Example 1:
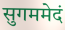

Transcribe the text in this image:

सुगममेदं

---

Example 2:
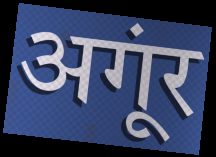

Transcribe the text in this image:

अगूंर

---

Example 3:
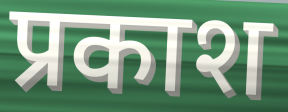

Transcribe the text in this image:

प्रकाश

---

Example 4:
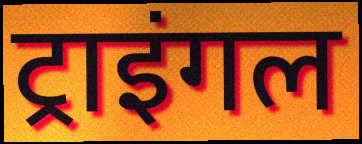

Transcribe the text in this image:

ट्राइंगल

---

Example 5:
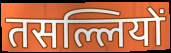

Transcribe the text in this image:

तसल्लियों